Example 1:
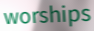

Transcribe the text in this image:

worships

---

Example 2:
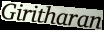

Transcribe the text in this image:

Giritharan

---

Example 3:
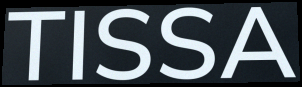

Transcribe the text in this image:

TISSA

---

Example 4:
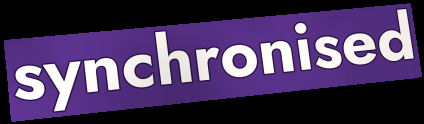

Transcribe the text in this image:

synchronised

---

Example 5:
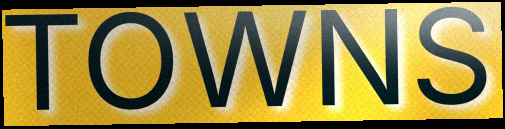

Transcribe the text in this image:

TOWNS